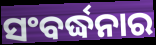
ସଂବର୍ଦ୍ଧନାର